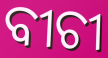
ବୀଚୀ